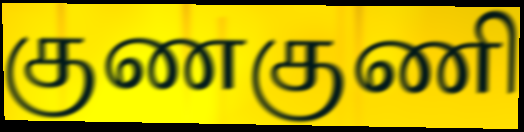
குணகுணி